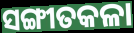
ସଙ୍ଗୀତକଳା